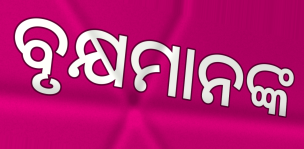
ବୃକ୍ଷମାନଙ୍କ